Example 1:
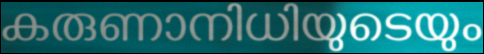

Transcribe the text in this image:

കരുണാനിധിയുടെയും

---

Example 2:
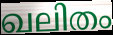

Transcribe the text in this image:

ഖലിതം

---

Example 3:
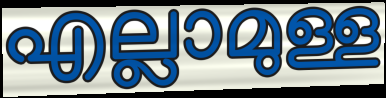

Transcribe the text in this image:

എല്ലാമുള്ള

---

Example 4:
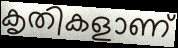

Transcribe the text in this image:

കൃതികളാണ്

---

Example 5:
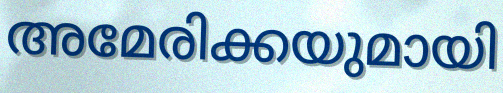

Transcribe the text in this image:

അമേരിക്കയുമായി